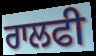
ਰਾਲਫੀ